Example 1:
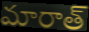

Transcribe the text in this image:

మారాత్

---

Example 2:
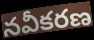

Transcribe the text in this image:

నవీకరణ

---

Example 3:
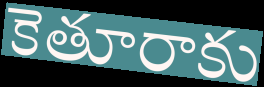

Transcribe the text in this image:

కెతూరాకు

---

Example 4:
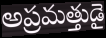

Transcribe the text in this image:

అప్రమత్తుడై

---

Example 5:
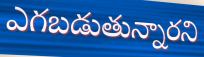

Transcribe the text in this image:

ఎగబడుతున్నారని